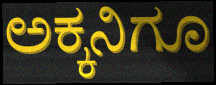
ಅಕ್ಕನಿಗೂ